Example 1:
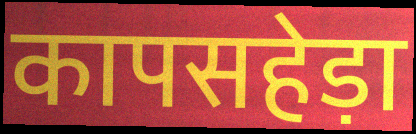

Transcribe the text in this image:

कापसहेड़ा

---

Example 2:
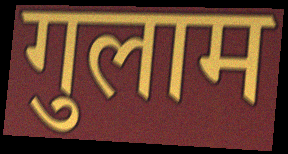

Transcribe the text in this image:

गुलाम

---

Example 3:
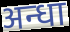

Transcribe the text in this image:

अन्धा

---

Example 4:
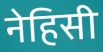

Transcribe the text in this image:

नेहिसी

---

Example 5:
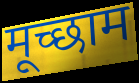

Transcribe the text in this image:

मूच्छाम